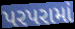
પરપરામાં